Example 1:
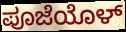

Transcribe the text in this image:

ಪೂಜೆಯೊಳ್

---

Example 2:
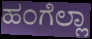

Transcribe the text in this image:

ಹಂಗೆಲ್ಲಾ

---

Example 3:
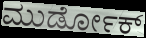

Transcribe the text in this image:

ಮುರ್ಡೋಕ್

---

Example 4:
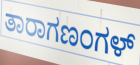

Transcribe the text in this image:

ತಾರಾಗಣಂಗಳ್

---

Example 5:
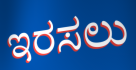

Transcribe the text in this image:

ಇರಸಲು